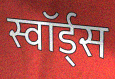
स्‍वॉर्ड्स